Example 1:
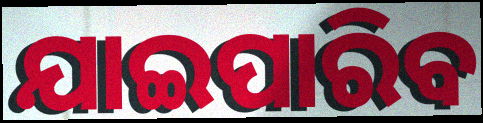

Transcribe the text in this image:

ଯାଇପାରିବ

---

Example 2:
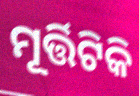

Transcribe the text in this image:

ମୂର୍ତ୍ତିଟିକି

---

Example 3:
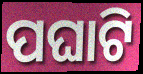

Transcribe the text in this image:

ପଘାଟି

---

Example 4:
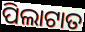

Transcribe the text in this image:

ପିଲାଟାତ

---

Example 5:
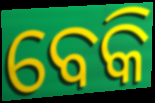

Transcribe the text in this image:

ବେକି